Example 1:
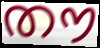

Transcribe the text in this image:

തൗ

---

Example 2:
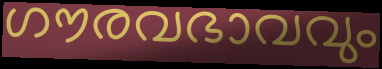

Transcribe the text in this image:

ഗൗരവഭാവവും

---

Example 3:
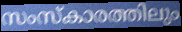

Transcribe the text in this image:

സംസ്കാരത്തിലും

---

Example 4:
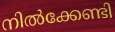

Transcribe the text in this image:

നിൽക്കേണ്ടി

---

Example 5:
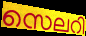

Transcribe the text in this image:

സെലറി